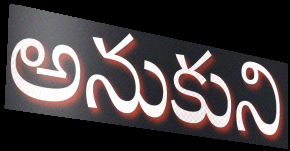
అనుకుని